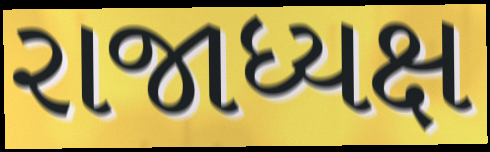
રાજાધ્યક્ષ